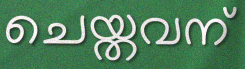
ചെയ്തവന്